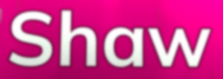
Shaw